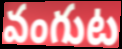
వంగుట